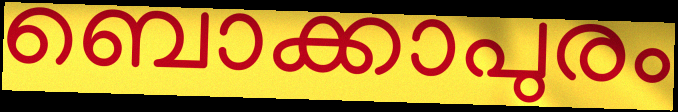
ബൊക്കാപുരം